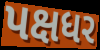
પક્ષધર